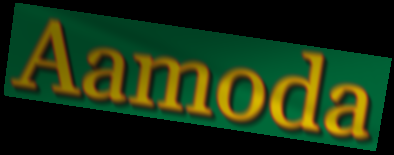
Aamoda